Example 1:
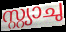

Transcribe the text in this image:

സ്റ്റ്യാചു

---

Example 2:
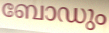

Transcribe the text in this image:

ബോഡും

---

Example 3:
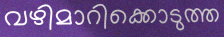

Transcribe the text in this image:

വഴിമാറിക്കൊടുത്ത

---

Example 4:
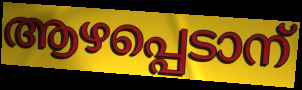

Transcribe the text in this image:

ആഴപ്പെടാന്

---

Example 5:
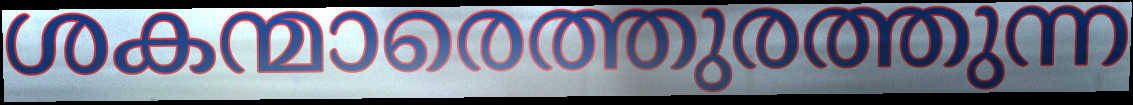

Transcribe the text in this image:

ശകന്മാരെത്തുരത്തുന്ന